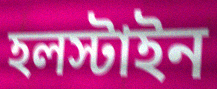
হলস্টাইন